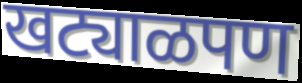
खट्याळपण